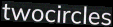
twocircles